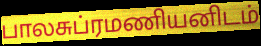
பாலசுப்ரமணியனிடம்